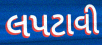
લપટાવી